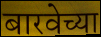
बारवेच्या